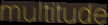
multitude